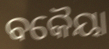
ବକୈୟା